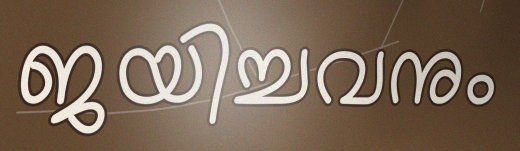
ജയിച്ചവനും